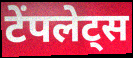
टेंपलेट्स